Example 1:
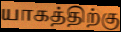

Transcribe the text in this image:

யாகத்திற்கு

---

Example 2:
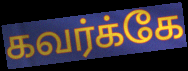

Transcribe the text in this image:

கவர்க்கே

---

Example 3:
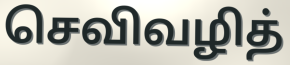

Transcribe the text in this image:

செவிவழித்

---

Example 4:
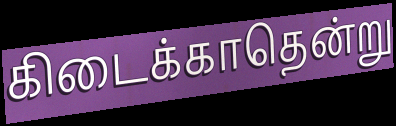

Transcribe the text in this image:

கிடைக்காதென்று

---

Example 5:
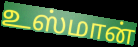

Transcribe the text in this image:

உஸ்மான்